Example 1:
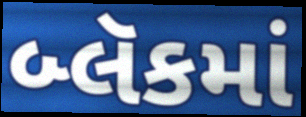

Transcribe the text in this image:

બ્લૅકમાં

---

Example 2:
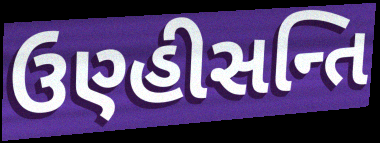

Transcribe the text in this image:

ઉણ્હીસન્તિ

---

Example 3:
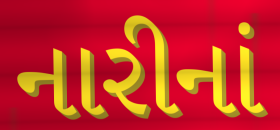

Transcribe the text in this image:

નારીનાં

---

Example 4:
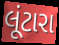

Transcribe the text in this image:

લૂંટારા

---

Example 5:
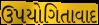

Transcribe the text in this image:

ઉપયોગિતાવાદ